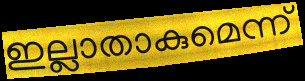
ഇല്ലാതാകുമെന്ന്